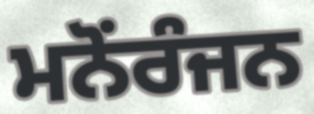
ਮਨੋਂਰੰਜਨ